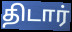
திடார்